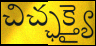
చిచ్ఛక్త్యై